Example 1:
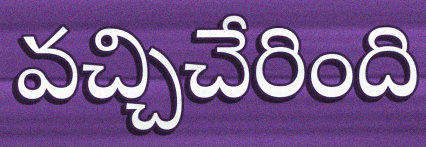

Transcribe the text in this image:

వచ్చిచేరింది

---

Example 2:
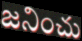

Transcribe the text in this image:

జనించు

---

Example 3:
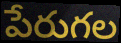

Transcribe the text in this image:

పేరుగల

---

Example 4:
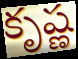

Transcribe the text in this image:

కృష్ణ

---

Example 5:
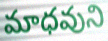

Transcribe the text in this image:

మాధవుని